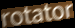
rotator